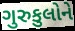
ગુરુકુલોને